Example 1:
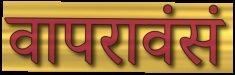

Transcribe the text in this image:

वापरावंसं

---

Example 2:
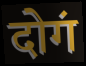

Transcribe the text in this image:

दोगं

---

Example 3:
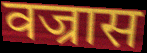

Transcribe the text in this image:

वज्रास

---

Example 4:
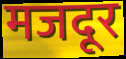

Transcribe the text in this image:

मजदूर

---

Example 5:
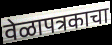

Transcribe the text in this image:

वेळापत्रकाचा